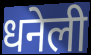
धनेली